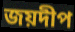
জয়দীপ